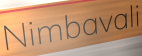
Nimbavali